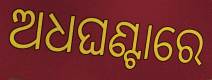
ଅଧଘଣ୍ଟାରେ